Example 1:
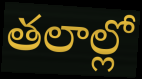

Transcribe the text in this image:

తలాల్లో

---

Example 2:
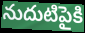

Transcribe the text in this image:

నుదుటిపైకి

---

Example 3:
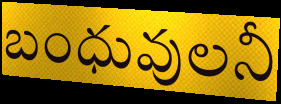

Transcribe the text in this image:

బంధువులనీ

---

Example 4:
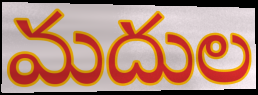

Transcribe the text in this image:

మదుల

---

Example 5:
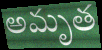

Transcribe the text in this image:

అమృత